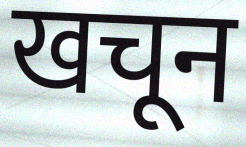
खचून